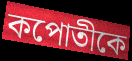
কপোতীকে